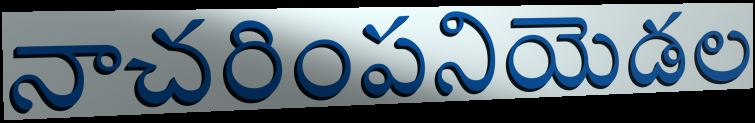
నాచరింపనియెడల